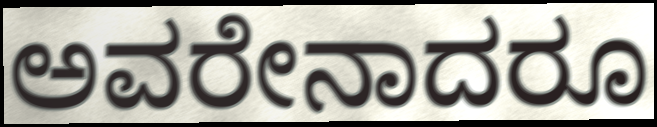
ಅವರೇನಾದರೂ